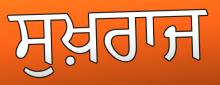
ਸੁਖ਼ਰਾਜ